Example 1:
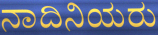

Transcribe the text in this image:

ನಾದಿನಿಯರು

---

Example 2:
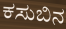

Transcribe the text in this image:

ಕಸುಬಿನ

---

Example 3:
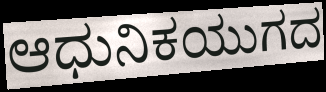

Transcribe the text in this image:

ಆಧುನಿಕಯುಗದ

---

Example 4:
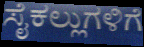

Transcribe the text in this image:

ಸೈಕಲ್ಲುಗಳಿಗೆ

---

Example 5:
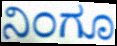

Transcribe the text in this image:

ನಿಂಗೂ